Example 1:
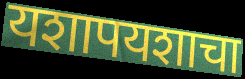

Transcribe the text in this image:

यशापयशाचा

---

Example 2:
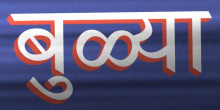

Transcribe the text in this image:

बुळ्या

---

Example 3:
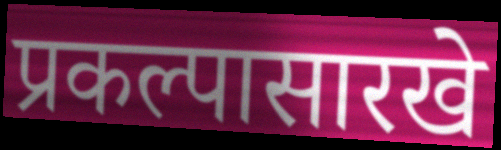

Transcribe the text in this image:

प्रकल्पासारखे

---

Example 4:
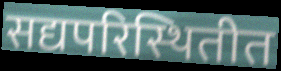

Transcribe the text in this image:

सद्यपरिस्थितीत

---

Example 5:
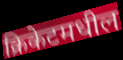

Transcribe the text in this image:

क्रिकेटमधील